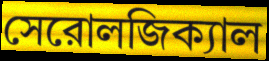
সেরোলজিক্যাল